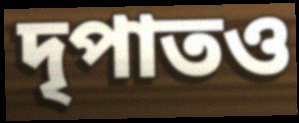
দৃপাতও